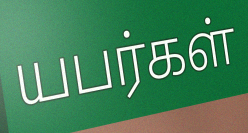
யபர்கள்